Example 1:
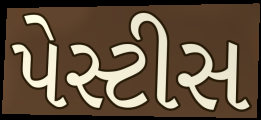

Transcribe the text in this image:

પેસ્ટીસ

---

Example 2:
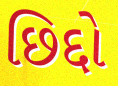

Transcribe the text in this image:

છિદ્દો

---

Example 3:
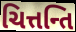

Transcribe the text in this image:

ચિત્તન્તિ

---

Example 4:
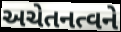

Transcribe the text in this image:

અચેતનત્વને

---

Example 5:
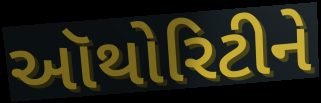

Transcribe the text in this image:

ઑથોરિટીને